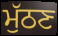
ਮੁੱਠਣ